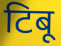
टिबू